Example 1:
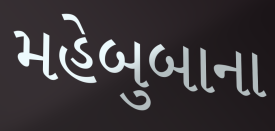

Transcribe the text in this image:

મહેબુબાના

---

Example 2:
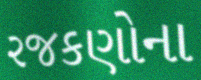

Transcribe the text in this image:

રજકણોના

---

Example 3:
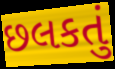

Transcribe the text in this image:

છલકતું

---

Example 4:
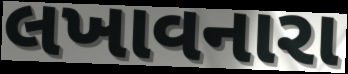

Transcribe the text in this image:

લખાવનારા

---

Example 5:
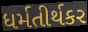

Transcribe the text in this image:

ધર્મતીર્થકર